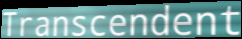
Transcendent